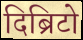
दिब्रिटो